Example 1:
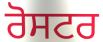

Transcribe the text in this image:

ਰੋਸਟਰ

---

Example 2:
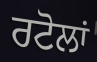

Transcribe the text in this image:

ਰਟੋਲਾਂ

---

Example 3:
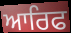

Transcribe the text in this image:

ਆਰਿਫ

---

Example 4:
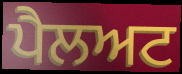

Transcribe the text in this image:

ਪੈਲਅਟ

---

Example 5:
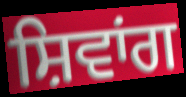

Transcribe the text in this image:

ਸ਼ਿਵਾਂਗ